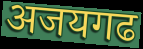
अजयगढ